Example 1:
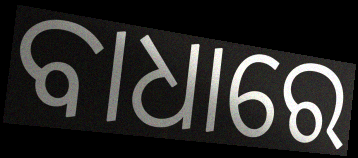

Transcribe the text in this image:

ବାଧାରେ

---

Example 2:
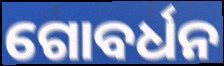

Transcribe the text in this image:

ଗୋବର୍ଧନ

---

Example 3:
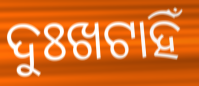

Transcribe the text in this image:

ଦୁଃଖଟାହିଁ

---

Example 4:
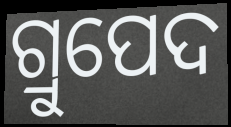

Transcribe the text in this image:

ଗ୍ରୁପେଦ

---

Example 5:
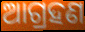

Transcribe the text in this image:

ଆଗ୍ରହଣ